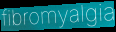
fibromyalgia